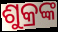
ଶୁକ୍ରଙ୍କ